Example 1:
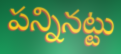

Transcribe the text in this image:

పన్నినట్టు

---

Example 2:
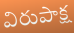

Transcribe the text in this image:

విరుపాక్ష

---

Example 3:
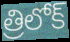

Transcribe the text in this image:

త్రిలోక్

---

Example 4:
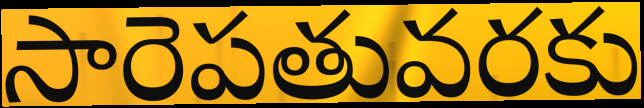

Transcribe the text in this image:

సారెపతువరకు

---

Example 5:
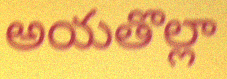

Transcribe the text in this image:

అయతొల్లా